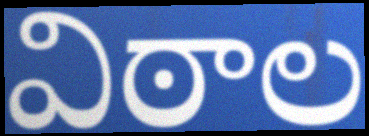
విఠాల